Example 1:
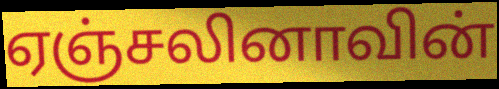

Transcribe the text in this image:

ஏஞ்சலினாவின்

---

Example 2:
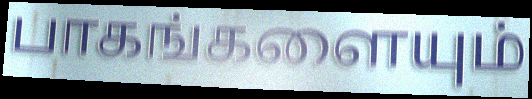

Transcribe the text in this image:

பாகங்களையும்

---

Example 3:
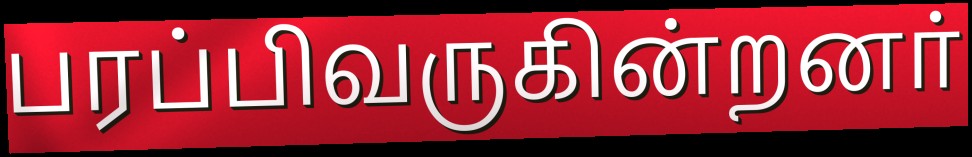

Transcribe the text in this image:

பரப்பிவருகின்றனர்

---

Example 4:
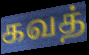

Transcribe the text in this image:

கவத்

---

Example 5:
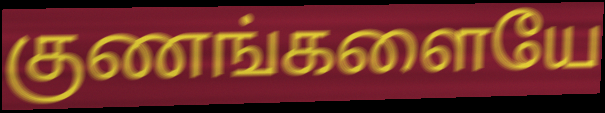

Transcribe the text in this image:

குணங்களையே